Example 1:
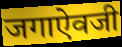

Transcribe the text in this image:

जगाऐवजी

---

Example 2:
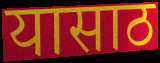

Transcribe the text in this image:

यासाठ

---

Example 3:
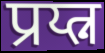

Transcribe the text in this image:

प्रय्त्न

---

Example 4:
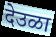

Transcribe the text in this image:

देउळा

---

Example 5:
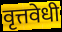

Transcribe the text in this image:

वृत्तवेधी